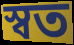
স্বত